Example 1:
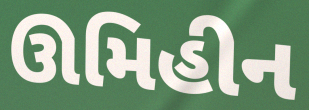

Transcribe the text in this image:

ઊમિહીન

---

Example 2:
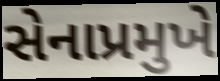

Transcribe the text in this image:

સેનાપ્રમુખે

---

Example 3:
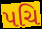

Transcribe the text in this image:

પચિ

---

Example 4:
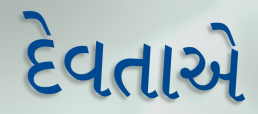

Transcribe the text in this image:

દેવતાએ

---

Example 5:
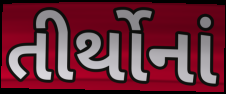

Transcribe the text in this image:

તીર્થોનાં